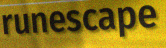
runescape